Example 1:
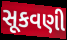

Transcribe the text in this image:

સૂકવણી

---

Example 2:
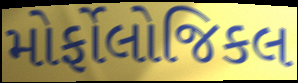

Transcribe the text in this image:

મોર્ફોલોજિકલ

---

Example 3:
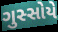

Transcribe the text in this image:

ગુસ્સોયે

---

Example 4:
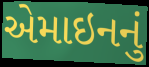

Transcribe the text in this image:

એમાઇનનું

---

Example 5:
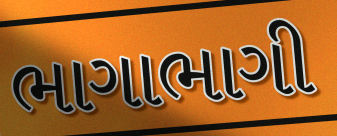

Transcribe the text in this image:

ભાગાભાગી